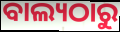
ବାଲ୍ୟଠାରୁ